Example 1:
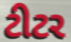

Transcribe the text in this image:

ટીટર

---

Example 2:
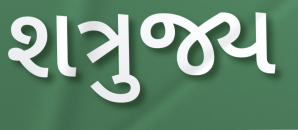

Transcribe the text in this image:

શત્રુજ્ય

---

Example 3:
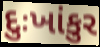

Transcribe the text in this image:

દુઃખાંકુર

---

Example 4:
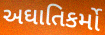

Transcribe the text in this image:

અઘાતિકર્મો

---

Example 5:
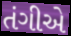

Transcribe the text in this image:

તંગીએ